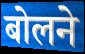
बोलने